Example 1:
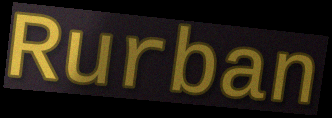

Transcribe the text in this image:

Rurban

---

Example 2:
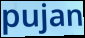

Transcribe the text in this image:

pujan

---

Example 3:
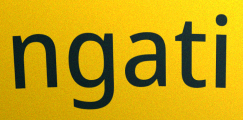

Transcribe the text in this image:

ngati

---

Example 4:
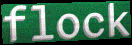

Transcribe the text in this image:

flock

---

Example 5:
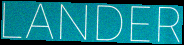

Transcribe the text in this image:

LANDER